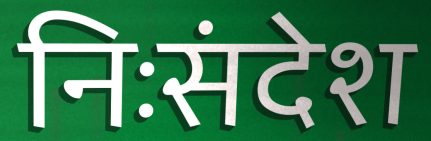
निःसंदेश